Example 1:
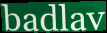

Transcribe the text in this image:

badlav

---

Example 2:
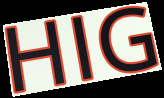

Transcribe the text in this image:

HIG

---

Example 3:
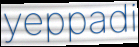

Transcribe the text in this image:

yeppadi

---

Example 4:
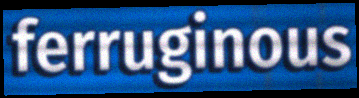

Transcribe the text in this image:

ferruginous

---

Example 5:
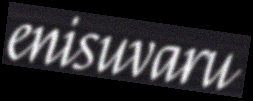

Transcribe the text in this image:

enisuvaru